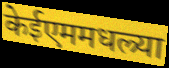
केईएममधल्या